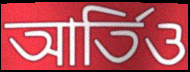
আর্তিও